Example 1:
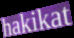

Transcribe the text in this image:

hakikat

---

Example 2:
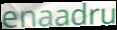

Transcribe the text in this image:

enaadru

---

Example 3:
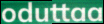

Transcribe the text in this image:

oduttaa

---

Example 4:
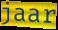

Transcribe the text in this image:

jaar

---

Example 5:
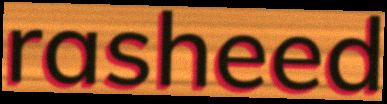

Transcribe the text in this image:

rasheed